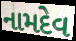
નામદેવ